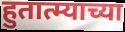
हुतात्म्याच्या